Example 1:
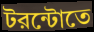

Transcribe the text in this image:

টরন্টোতে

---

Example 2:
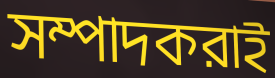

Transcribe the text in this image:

সম্পাদকরাই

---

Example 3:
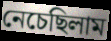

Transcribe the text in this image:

নেচেছিলাম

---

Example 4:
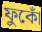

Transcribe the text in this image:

ফুকোঁ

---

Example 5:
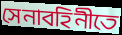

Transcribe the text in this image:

সেনাবহিনীতে